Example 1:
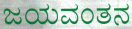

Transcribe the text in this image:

ಜಯವಂತನ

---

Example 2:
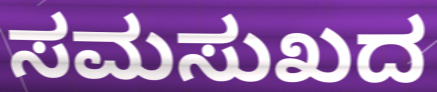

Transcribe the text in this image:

ಸಮಸುಖದ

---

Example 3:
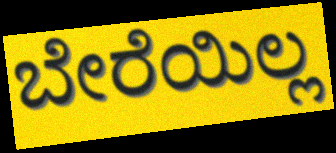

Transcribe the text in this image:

ಬೇರೆಯಿಲ್ಲ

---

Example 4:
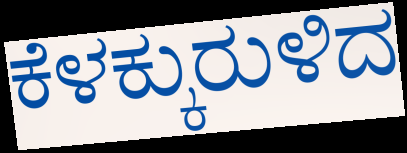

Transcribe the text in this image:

ಕೆಳಕ್ಕುರುಳಿದ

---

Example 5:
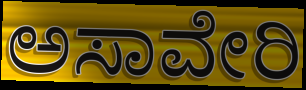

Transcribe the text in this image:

ಅಸಾವೇರಿ